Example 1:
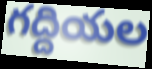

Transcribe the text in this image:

గద్దియల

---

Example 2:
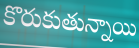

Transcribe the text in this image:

కొరుకుతున్నాయి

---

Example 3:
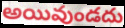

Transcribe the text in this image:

అయివుండదు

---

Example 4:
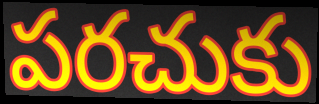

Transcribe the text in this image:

పరచుకు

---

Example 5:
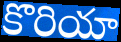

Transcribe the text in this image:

కొరియా